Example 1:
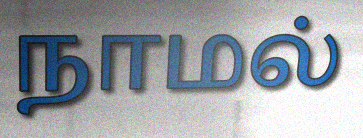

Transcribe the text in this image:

நாமல்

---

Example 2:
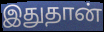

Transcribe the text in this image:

இதுதான்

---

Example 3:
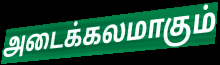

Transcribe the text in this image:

அடைக்கலமாகும்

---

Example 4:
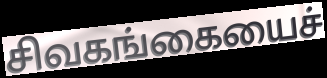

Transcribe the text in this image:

சிவகங்கையைச்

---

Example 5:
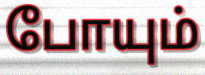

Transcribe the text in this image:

போயும்